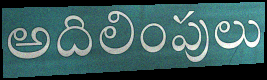
అదిలింపులు